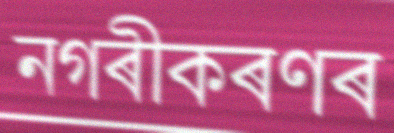
নগৰীকৰণৰ